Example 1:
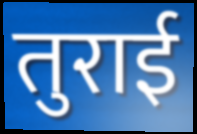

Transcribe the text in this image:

तुराई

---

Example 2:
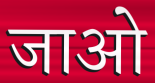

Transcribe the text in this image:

जाओ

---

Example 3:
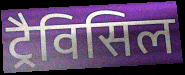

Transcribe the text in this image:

ट्रैविसिल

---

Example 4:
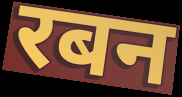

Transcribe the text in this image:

रबन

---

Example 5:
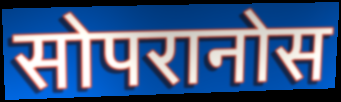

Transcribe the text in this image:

सोपरानोस